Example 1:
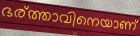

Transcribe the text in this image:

ഭര്ത്താവിനെയാണ്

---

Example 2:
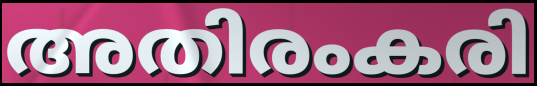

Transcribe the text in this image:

അതിരംകരി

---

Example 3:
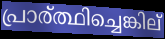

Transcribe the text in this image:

പ്രാര്ത്ഥിച്ചെങ്കില്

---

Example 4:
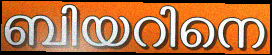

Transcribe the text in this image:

ബിയറിനെ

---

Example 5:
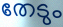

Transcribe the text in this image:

തേടും